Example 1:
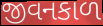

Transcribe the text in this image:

જીવનકાળ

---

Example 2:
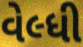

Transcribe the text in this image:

વેલ્ધી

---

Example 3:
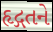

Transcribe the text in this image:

હૃદ્ગતને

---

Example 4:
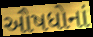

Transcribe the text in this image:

ઔષધોનાં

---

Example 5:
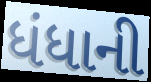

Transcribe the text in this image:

ધંધાની